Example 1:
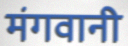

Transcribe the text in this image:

मंगवानी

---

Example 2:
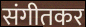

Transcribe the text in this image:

संगीतकर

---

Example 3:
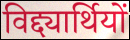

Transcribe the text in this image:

विद्द्यार्थियों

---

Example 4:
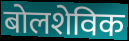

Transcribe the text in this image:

बोलशेविक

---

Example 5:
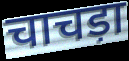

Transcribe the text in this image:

चाचड़ा